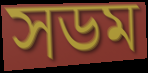
সডম